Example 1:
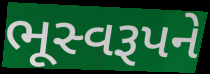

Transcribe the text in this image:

ભૂસ્વરૂપને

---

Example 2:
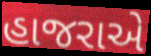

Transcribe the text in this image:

હાજરાએ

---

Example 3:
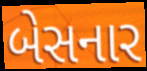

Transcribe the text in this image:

બેસનાર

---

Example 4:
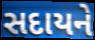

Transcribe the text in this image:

સદાયને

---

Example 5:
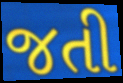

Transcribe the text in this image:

જતી